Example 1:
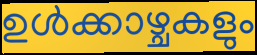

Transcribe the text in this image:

ഉൾക്കാഴ്ചകളും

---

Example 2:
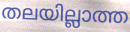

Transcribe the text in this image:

തലയില്ലാത്ത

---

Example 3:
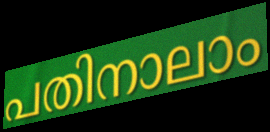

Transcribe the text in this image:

പതിനാലാം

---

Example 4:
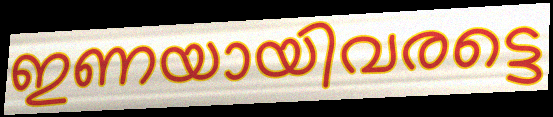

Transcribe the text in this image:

ഇണയായിവരട്ടെ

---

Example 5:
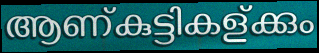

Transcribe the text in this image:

ആണ്കുട്ടികള്ക്കും